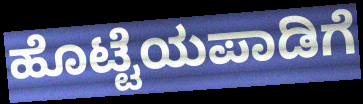
ಹೊಟ್ಟೆಯಪಾಡಿಗೆ